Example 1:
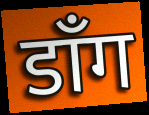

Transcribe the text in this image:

डाँग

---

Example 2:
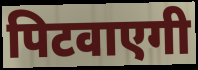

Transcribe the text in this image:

पिटवाएगी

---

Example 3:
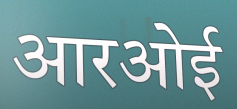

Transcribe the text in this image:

आरओई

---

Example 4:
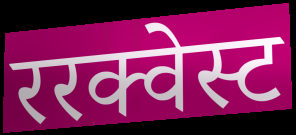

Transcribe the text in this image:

ररक्वेस्ट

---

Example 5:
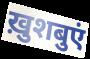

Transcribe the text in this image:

ख़ुशबुएं